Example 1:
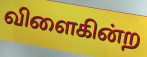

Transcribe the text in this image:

விளைகின்ற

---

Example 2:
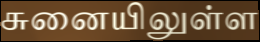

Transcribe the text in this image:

சுனையிலுள்ள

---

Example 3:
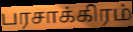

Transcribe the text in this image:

பரசாக்கிரம்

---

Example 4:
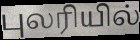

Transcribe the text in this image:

புலரியில்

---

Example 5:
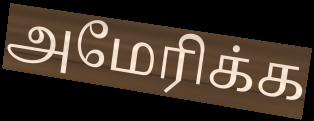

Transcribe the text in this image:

அமேரிக்க